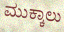
ಮುಕ್ಕಾಲು